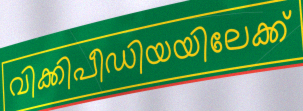
വിക്കിപീഡിയയിലേക്ക്